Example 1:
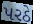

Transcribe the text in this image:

પરઠે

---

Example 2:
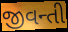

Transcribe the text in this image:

જીવન્તી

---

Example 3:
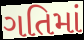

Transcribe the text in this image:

ગતિમાં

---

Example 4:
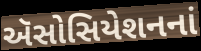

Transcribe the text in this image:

ઍસોસિયેશનનાં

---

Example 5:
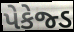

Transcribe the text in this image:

પેકેજ્ડ